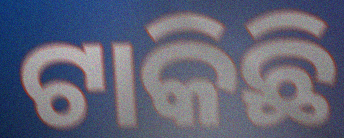
ଟାକିଛି